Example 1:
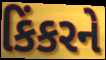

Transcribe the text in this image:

કિંકરને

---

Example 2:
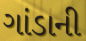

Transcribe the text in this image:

ગાંડાની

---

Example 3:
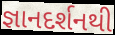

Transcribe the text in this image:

જ્ઞાનદર્શનથી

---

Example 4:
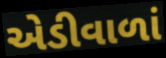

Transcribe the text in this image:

એડીવાળાં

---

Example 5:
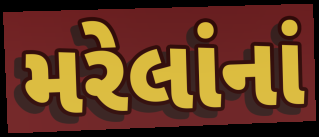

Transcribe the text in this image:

મરેલાંનાં